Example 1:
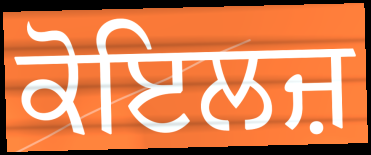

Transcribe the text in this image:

ਕੋਇਲਜ਼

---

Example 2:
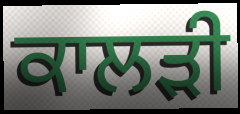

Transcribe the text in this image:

ਕਾਲੜੀ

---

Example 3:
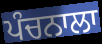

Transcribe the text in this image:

ਪੰਚਨਾਲਾ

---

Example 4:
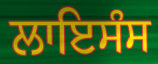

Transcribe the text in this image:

ਲਾਇਸੰਸ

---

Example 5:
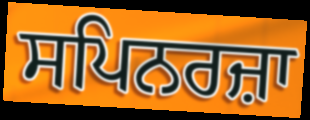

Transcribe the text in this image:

ਸਪਿਨਰਜ਼ਾ